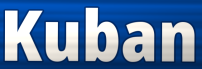
Kuban